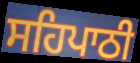
ਸਹਿਪਾਠੀ